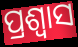
ପ୍ରଶ୍ଵାସ